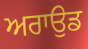
ਅਰਾਉਡ